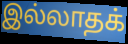
இல்லாதக்